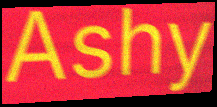
Ashy